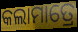
କଲାମାତ୍ରେ